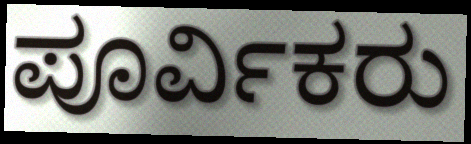
ಪೂರ್ವಿಕರು